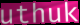
uthuk